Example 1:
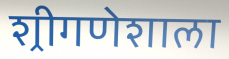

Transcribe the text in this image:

श्रीगणेशाला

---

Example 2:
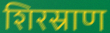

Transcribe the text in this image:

शिरस्राण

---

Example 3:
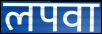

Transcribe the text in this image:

लपवा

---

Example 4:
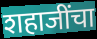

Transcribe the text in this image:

शहाजींचा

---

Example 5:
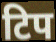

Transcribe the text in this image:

टिप